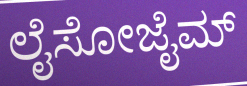
ಲೈಸೋಜೈಮ್